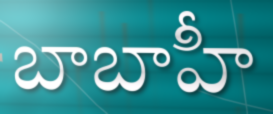
బాబాహీ